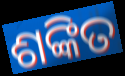
ଶଙ୍କିତ